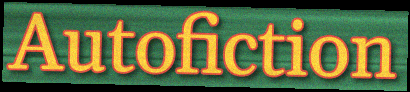
Autofiction